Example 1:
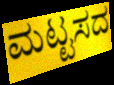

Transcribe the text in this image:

ಮಟ್ಟಸದ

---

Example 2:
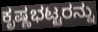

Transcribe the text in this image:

ಕೃಷ್ಣಭಟ್ಟರನ್ನು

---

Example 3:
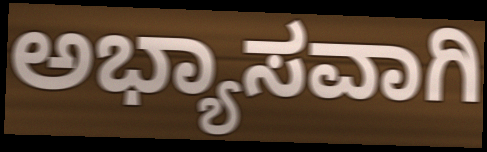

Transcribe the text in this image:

ಅಭ್ಯಾಸವಾಗಿ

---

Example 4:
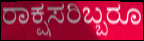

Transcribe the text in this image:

ರಾಕ್ಷಸರಿಬ್ಬರೂ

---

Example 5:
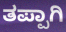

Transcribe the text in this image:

ತಪ್ಪಾಗಿ